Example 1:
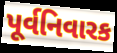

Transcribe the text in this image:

પૂર્વનિવારક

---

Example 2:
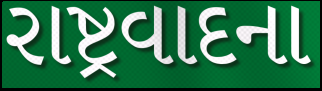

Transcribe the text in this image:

રાષ્ટ્રવાદના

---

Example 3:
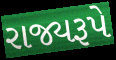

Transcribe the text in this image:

રાજ્યરૂપે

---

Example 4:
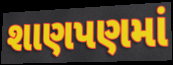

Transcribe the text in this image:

શાણપણમાં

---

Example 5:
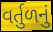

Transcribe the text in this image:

વર્તુળનું